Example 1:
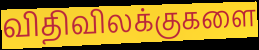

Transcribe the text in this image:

விதிவிலக்குகளை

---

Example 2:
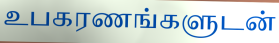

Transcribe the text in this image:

உபகரணங்களுடன்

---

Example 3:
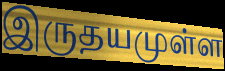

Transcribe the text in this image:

இருதயமுள்ள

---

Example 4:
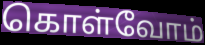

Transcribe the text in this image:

கொள்வோம்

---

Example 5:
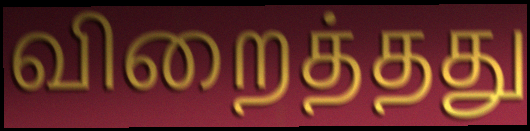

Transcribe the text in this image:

விறைத்தது